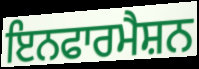
ਇਨਫਾਰਮੈਸ਼ਨ